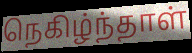
நெகிழ்ந்தாள்